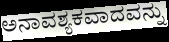
ಅನಾವಶ್ಯಕವಾದವನ್ನು